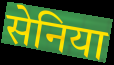
सेनिया